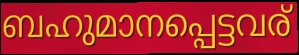
ബഹുമാനപ്പെട്ടവര്